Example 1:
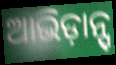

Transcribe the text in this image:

ଆଭିଡ଼ାନ୍ସ୍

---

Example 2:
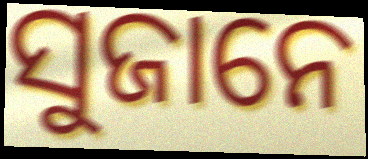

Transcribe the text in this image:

ସୁଜାନେ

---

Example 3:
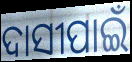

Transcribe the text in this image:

ଦାସୀପାଇଁ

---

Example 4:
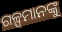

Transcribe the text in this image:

ଗଳ୍ପମାନଙ୍କୁ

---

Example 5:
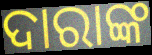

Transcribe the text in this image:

ଦାରାଙ୍କ